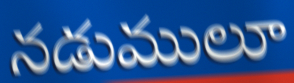
నడుములూ